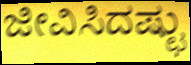
ಜೀವಿಸಿದಷ್ಟು